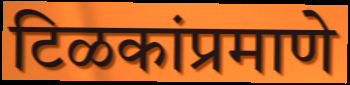
टिळकांप्रमाणे